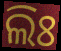
ଲିଃ